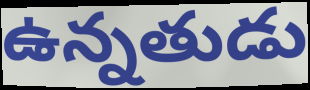
ఉన్నతుడు